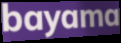
bayama